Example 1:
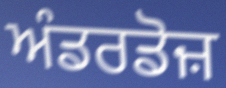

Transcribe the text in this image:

ਅੰਡਰਡੋਜ਼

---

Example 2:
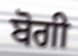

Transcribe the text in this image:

ਬੋਗੀ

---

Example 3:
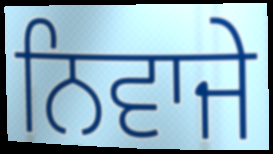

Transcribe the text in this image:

ਨਿਵਾਜੇ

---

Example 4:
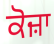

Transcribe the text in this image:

ਕੋਜ਼ਾ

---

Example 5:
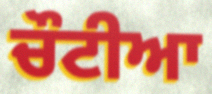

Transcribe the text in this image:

ਚੌਟੀਆ